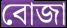
বোজা